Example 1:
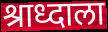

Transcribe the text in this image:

श्राध्दाला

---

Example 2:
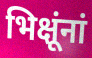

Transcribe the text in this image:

भिक्षूंनां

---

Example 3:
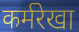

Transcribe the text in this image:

कर्मरेखा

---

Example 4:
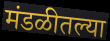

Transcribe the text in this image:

मंडळीतल्या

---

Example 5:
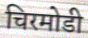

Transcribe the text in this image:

चिरमोडी